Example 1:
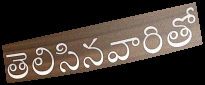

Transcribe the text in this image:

తెలిసినవారితో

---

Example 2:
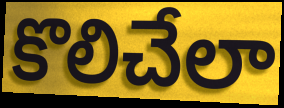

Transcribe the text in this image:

కొలిచేలా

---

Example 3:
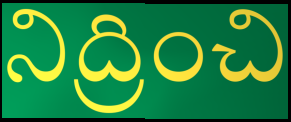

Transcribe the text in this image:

నిద్రించి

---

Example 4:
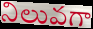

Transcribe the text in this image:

నిలువగా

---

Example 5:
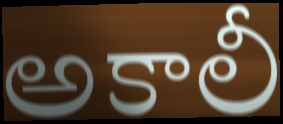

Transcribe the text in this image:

అకాలీ